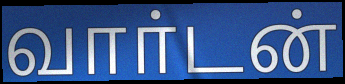
வார்டன்